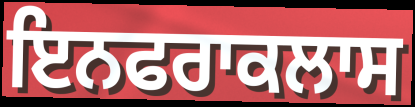
ਇਨਫਰਾਕਲਾਸ